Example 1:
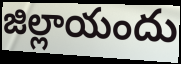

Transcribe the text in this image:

జిల్లాయందు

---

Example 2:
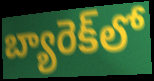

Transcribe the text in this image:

బ్యారెక్‌లో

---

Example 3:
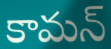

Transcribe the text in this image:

కామన్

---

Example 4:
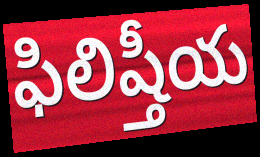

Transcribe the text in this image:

ఫిలిష్తీయ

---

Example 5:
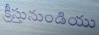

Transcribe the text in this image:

క్రీస్తునుండియు